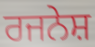
ਰਜਨੇਸ਼